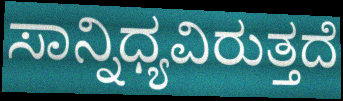
ಸಾನ್ನಿಧ್ಯವಿರುತ್ತದೆ